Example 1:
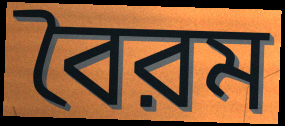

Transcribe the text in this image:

বৈরম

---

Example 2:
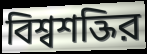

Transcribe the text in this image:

বিশ্বশক্তির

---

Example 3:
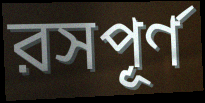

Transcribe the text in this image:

রসপূর্ণ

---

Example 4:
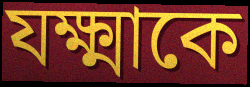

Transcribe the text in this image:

যক্ষ্মাকে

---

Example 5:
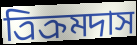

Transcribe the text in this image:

ত্রিক্রমদাস